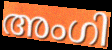
അംഗി